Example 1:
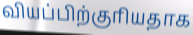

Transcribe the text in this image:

வியப்பிற்குரியதாக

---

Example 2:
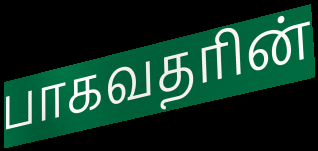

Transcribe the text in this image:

பாகவதரின்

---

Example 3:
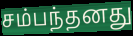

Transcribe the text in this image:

சம்பந்தனது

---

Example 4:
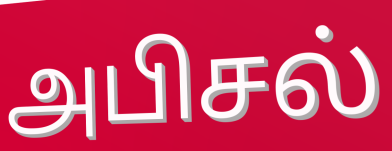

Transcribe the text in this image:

அபிசல்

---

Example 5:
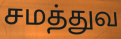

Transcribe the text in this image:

சமத்துவ